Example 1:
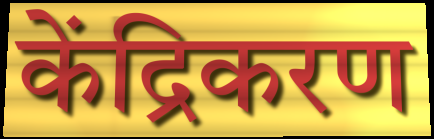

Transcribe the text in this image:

केंद्रिकरण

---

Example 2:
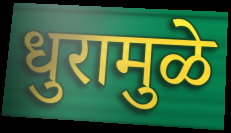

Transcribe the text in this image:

धुरामुळे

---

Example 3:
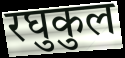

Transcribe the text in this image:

रघुकुल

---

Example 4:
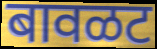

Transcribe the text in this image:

बावळट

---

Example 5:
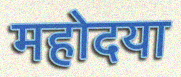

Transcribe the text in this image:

महोदया